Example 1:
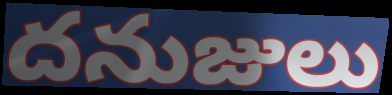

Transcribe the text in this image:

దనుజులు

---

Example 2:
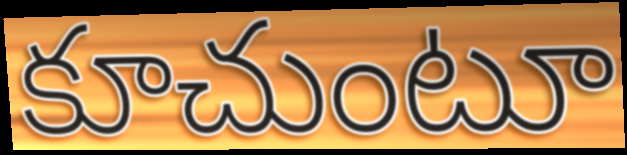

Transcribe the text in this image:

కూచుంటూ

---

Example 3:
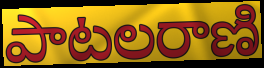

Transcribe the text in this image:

పాటలరాణి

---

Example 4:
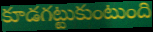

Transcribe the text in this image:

కూడగట్టుకుంటుంది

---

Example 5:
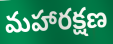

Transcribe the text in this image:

మహారక్షణ